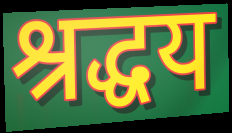
श्रद्धय